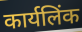
कार्यलिंक